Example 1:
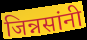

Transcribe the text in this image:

जिन्नसांनी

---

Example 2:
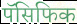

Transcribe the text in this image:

पॅसिफिक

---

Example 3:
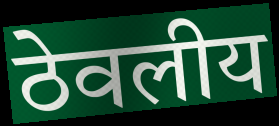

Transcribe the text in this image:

ठेवलीय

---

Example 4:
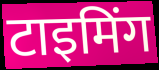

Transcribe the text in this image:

टाइमिंग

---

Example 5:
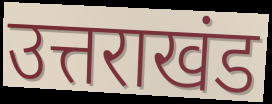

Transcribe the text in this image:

उत्तराखंड